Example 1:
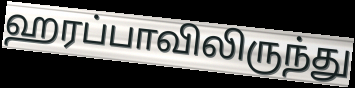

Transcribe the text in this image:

ஹரப்பாவிலிருந்து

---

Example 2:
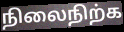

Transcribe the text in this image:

நிலைநிற்க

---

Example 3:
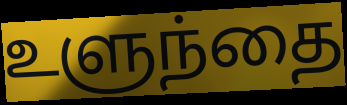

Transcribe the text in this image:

உளுந்தை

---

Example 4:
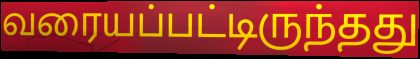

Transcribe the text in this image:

வரையப்பட்டிருந்தது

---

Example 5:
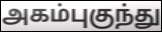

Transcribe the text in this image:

அகம்புகுந்து